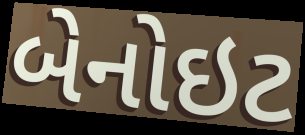
બેનોઇટ